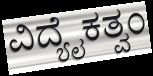
ವಿದ್ಯೈಕತ್ವಂ